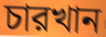
চারখান